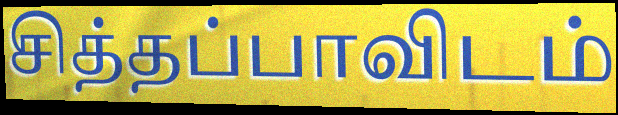
சித்தப்பாவிடம்